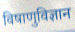
विषाणुविज्ञान